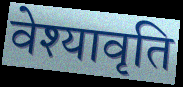
वेश्यावृति